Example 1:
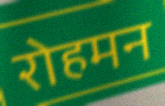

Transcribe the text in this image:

रोहमन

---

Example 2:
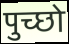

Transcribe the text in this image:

पुच्छो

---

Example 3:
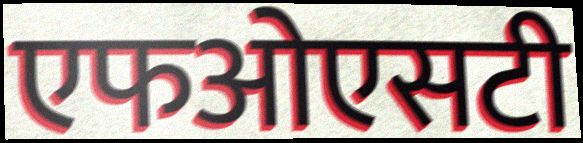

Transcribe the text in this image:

एफओएसटी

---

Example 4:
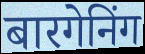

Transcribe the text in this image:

बारगेनिंग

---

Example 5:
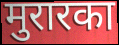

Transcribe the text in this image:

मुरारका